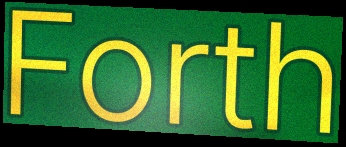
Forth